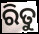
ରିତୁ